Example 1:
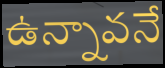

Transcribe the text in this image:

ఉన్నావనే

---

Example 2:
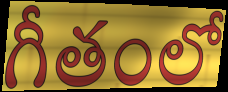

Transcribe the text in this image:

గీతంలో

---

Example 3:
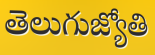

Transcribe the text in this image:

తెలుగుజ్యోతి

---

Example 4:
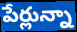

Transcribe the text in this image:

పేర్లున్నా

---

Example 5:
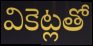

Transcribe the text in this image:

వికెట్లతో